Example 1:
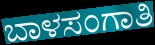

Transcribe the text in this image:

ಬಾಳಸಂಗಾತಿ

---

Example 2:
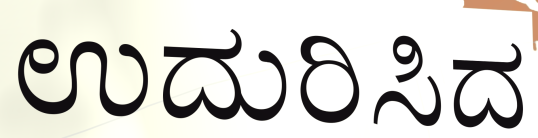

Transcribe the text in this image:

ಉದುರಿಸಿದ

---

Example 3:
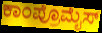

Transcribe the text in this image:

ಕಾಂಪ್ರೊಮೈಸ್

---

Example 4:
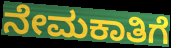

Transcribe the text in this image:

ನೇಮಕಾತಿಗೆ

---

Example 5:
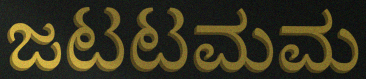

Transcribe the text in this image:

ಜಟಟಮಮ